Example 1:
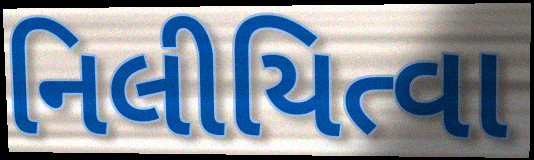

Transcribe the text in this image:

નિલીયિત્વા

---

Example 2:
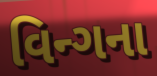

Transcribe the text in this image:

વિન્ગના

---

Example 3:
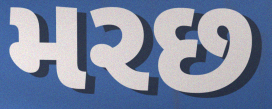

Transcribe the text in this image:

મરછ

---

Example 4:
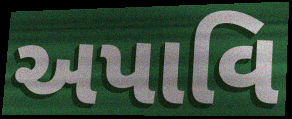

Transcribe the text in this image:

અપાવિ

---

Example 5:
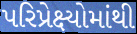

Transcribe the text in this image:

પરિપ્રેક્ષ્યોમાંથી